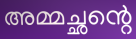
അമ്മച്ഛന്റെ